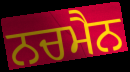
ਨਚਮੈਨ